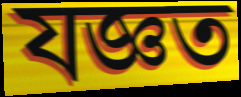
যজ্ঞত